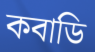
কবাডি